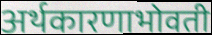
अर्थकारणाभोवती